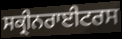
ਸਕ੍ਰੀਨਰਾਈਟਰਸ